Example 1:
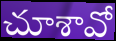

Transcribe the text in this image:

చూశావో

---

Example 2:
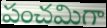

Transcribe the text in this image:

పంచమిగా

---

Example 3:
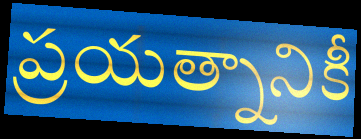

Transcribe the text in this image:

ప్రయత్నానికీ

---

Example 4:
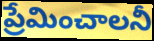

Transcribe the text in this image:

ప్రేమించాలనీ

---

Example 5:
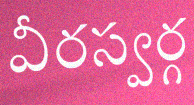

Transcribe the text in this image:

వీరస్వర్గ